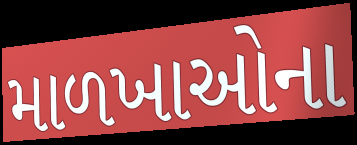
માળખાઓના